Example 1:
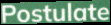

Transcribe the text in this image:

Postulate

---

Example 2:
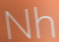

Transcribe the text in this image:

Nh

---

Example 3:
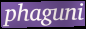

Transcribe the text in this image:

phaguni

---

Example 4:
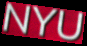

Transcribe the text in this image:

NYU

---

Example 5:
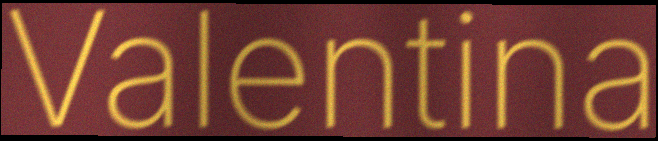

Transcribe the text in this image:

Valentina